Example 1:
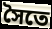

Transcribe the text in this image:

সৈতে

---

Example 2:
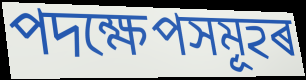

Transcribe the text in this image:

পদক্ষেপসমূহৰ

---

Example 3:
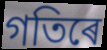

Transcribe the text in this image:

গতিৰে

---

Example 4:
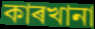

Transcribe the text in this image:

কাৰখানা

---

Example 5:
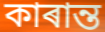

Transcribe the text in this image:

কাৰান্ত